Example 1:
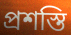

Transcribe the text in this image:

প্রশস্তি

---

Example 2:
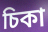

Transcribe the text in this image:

চিকা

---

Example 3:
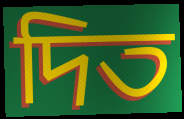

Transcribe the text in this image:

দিত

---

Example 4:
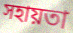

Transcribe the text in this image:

সহায়তা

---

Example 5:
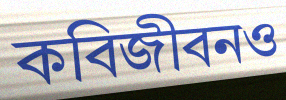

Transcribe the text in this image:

কবিজীবনও